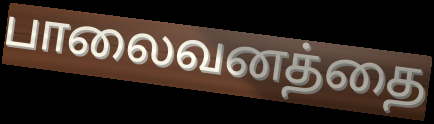
பாலைவனத்தை